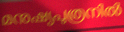
മനുഷ്യപുത്രനിൽ